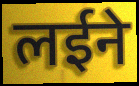
लईने